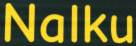
Nalku